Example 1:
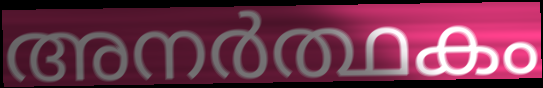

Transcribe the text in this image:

അനർത്ഥകം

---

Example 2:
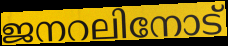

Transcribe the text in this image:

ജനറലിനോട്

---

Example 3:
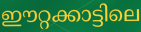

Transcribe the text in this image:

ഈറ്റക്കാട്ടിലെ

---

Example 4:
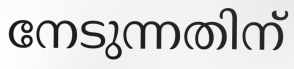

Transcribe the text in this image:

നേടുന്നതിന്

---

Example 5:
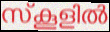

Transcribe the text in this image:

സ്‌കൂളിൽ